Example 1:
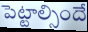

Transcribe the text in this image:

పెట్టాల్సిందే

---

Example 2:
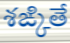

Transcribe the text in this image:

శఙ్కితే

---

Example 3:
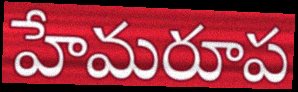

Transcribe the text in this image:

హేమరూప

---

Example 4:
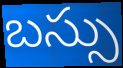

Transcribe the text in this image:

బస్సు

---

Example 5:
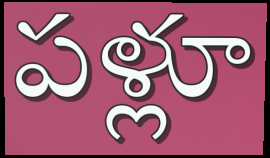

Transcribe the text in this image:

పళ్లూ